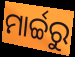
ମାର୍ଚ୍ଚରୁ